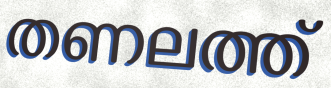
തണലത്ത്